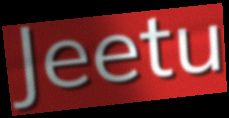
Jeetu